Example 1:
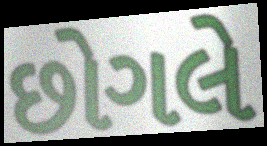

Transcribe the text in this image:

છોગલે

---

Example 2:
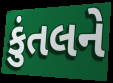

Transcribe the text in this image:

કુંતલને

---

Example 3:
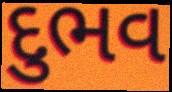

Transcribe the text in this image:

દુભવ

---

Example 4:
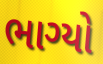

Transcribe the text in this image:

ભાગ્યો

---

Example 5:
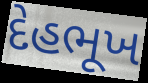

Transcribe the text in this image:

દેહભૂખ